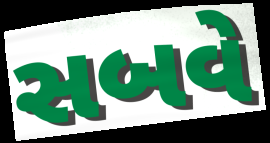
સબવે